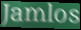
Jamlos